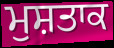
ਮੁਸ਼ਤਾਕ